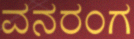
ವನರಂಗ